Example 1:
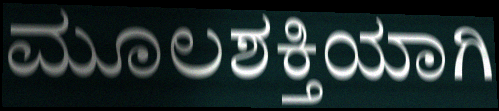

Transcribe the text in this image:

ಮೂಲಶಕ್ತಿಯಾಗಿ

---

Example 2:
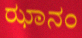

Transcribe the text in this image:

ಝಾನಂ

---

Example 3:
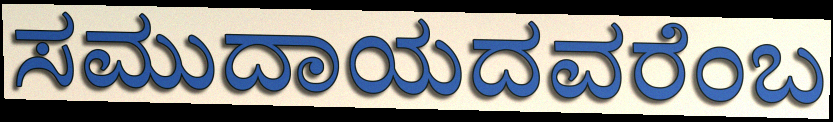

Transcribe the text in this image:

ಸಮುದಾಯದವರೆಂಬ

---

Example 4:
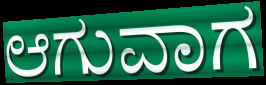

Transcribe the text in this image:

ಆಗುವಾಗ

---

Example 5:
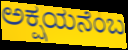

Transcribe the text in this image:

ಅಕ್ಷಯನೆಂಬ